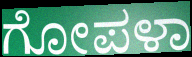
ಗೋಪಳಾ